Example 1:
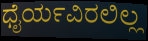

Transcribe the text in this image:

ಧೈರ್ಯವಿರಲಿಲ್ಲ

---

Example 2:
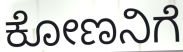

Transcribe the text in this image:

ಕೋಣನಿಗೆ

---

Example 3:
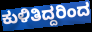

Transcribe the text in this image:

ಕುಳಿತಿದ್ದರಿಂದ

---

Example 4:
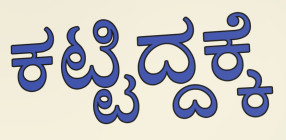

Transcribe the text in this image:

ಕಟ್ಟಿದ್ದಕ್ಕೆ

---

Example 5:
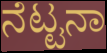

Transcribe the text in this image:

ನೆಟ್ಟನಾ